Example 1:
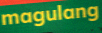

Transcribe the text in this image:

magulang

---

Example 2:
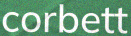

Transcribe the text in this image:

corbett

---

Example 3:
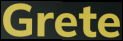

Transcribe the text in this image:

Grete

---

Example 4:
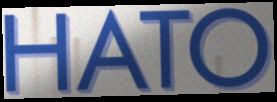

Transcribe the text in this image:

HATO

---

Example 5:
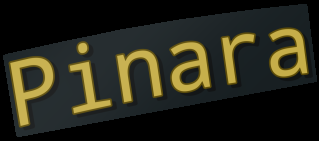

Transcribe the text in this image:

Pinara